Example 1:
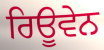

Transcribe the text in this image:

ਰਿਊਵੇਨ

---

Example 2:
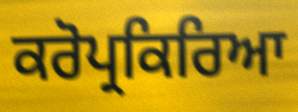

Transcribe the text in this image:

ਕਰੋਪ੍ਰਕਿਰਿਆ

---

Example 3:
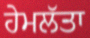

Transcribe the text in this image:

ਹੇਮਲੱਤਾ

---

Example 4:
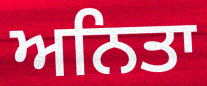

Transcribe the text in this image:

ਅਨਿਤਾ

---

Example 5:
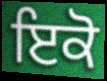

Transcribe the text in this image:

ਇਕੋ